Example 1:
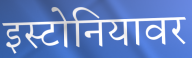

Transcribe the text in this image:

इस्टोनियावर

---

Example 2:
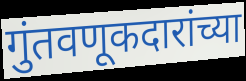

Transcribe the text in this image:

गुंतवणूकदारांच्या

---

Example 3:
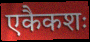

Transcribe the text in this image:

एकैकशः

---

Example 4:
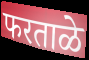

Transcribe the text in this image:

फरताळे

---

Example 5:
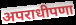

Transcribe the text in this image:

अपराधीपणा